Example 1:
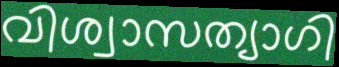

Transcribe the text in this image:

വിശ്വാസത്യാഗി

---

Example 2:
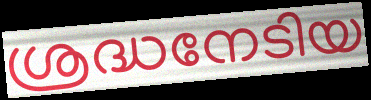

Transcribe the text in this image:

ശ്രദ്ധനേടിയ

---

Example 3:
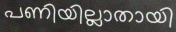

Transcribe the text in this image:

പണിയില്ലാതായി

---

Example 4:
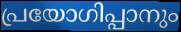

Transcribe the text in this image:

പ്രയോഗിപ്പാനും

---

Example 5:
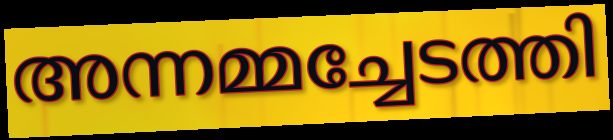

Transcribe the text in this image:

അന്നമ്മച്ചേടത്തി